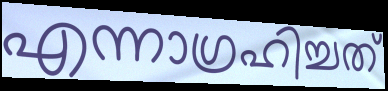
എന്നാഗ്രഹിച്ചത്